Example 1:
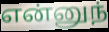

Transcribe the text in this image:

என்னுந்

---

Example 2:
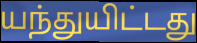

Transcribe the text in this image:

யந்துயிட்டது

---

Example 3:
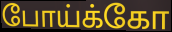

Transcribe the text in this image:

போய்க்கோ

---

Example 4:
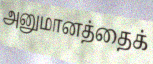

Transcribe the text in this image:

அனுமானத்தைக்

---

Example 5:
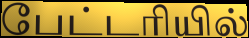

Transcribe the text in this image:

பேட்டரியில்